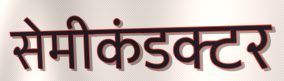
सेमीकंडक्टर